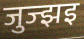
जुज्झइ